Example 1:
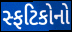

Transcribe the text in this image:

સ્ફટિકોનો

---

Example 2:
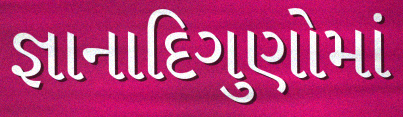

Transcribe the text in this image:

જ્ઞાનાદિગુણોમાં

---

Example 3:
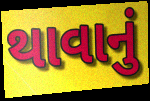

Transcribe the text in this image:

થાવાનું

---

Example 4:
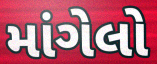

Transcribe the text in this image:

માંગેલો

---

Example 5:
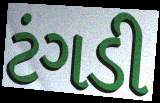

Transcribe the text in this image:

ટંગડી